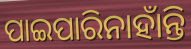
ପାଇପାରିନାହାଁନ୍ତି